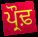
ਪ੍ਰੌਢ਼